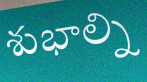
శుభాల్ని